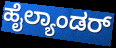
ಹೈಲ್ಯಾಂಡರ್